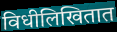
विधीलिखितात